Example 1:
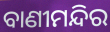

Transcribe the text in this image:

ବାଣୀମନ୍ଦିର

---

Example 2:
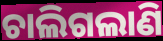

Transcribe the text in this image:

ଚାଲିଗଲାଣି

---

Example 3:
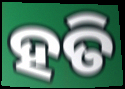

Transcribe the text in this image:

ହତି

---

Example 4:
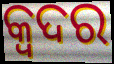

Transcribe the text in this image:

କ୍ୱଦର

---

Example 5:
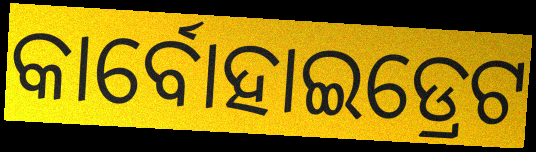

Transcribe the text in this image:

କାର୍ବୋହାଇଡ୍ରେଟ